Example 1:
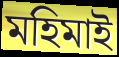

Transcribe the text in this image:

মহিমাই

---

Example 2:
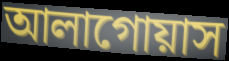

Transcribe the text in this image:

আলাগোয়াস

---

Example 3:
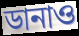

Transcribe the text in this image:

ডানাও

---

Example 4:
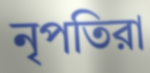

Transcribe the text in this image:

নৃপতিরা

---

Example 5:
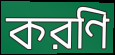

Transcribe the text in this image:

করণি